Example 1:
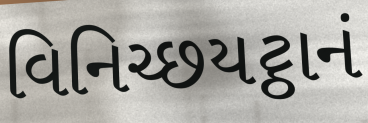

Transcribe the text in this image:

વિનિચ્છયટ્ઠાનં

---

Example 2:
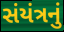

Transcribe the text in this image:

સંયંત્રનું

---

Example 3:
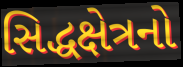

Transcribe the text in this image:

સિદ્ધક્ષેત્રનો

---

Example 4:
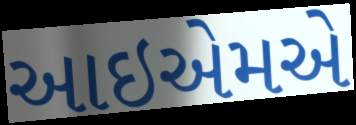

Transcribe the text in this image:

આઇએમએ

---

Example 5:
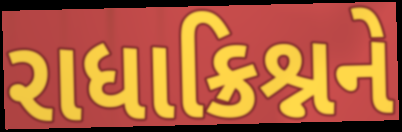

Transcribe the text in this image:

રાધાક્રિશ્નને